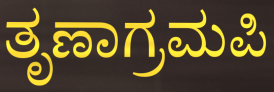
ತೃಣಾಗ್ರಮಪಿ